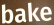
bake